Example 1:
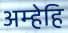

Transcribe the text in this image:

अम्हेहि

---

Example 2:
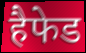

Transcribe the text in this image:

हैफेड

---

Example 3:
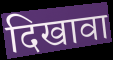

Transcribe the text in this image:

दिखावा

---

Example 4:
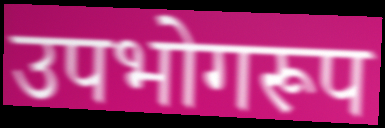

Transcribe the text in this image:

उपभोगरूप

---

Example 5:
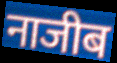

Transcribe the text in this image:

नाजीब